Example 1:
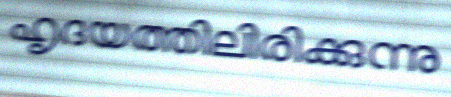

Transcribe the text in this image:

ഹൃദയത്തിലിരിക്കുന്നു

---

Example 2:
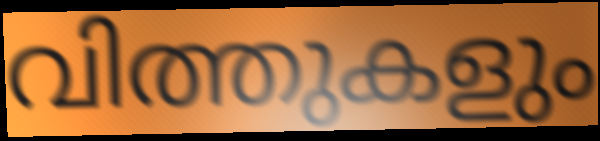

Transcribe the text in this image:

വിത്തുകളും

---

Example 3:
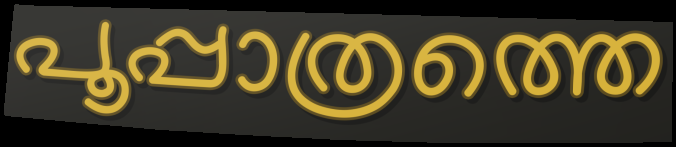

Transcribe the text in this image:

പൂപ്പാത്രത്തെ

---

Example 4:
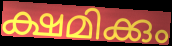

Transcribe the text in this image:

ക്ഷമിക്കും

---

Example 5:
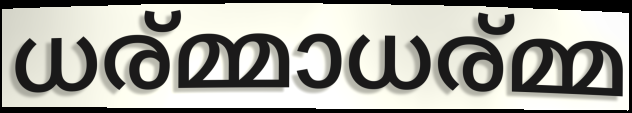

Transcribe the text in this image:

ധര്മ്മാധര്മ്മ